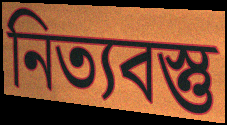
নিত্যবস্তু